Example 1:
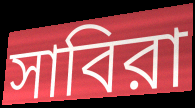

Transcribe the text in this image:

সাবিরা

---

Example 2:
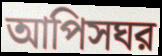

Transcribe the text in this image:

আপিসঘর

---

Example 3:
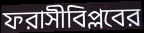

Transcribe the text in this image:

ফরাসীবিপ্লবের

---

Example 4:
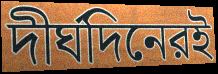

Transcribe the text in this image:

দীর্ঘদিনেরই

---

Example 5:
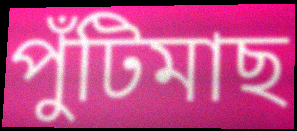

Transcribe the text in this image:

পুঁটিমাছ